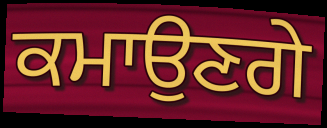
ਕਮਾਉਣਗੇ